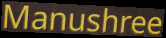
Manushree